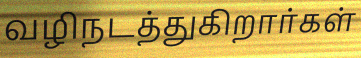
வழிநடத்துகிறார்கள்